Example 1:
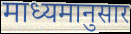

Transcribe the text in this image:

माध्यमानुसार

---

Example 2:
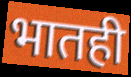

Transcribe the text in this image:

भातही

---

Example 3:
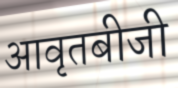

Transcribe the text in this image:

आवृतबीजी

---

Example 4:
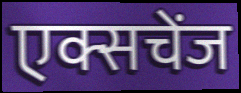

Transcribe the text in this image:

एक्सचेंज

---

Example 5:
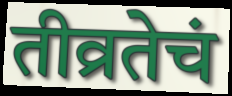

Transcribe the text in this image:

तीव्रतेचं